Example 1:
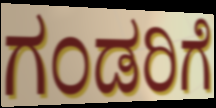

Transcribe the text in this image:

ಗಂಡರಿಗೆ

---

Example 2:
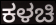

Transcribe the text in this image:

ಕಳಚಿ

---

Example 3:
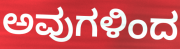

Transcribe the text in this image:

ಅವುಗಳಿಂದ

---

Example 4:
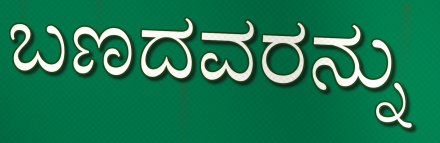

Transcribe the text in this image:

ಬಣದವರನ್ನು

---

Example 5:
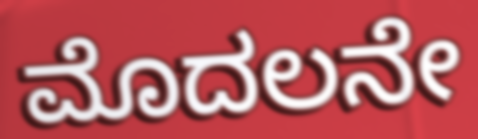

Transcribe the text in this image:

ಮೊದಲನೇ